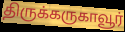
திருக்கருகாவூர்